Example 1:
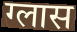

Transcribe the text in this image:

ग्लास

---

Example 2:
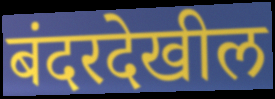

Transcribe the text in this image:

बंदरदेखील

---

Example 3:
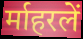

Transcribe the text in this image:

र्माहरलें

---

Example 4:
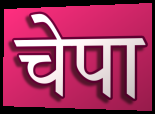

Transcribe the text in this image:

चेपा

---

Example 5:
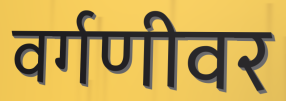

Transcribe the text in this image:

वर्गणीवर